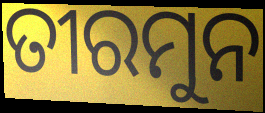
ତୀରମୁନ